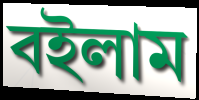
বইলাম